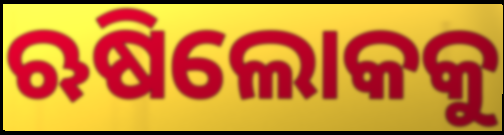
ଋଷିଲୋକକୁ